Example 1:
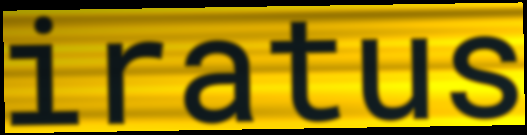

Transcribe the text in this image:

iratus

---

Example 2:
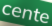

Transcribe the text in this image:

cente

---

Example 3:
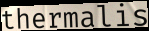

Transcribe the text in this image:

thermalis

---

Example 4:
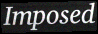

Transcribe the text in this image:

Imposed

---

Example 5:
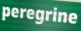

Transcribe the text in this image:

peregrine